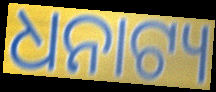
ଧନାଟ୍ୟ